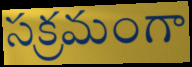
సక్రమంగా